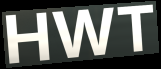
HWT